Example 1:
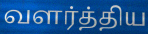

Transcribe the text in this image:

வளர்த்திய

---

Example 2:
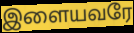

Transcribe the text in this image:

இளையவரே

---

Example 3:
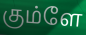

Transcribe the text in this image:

கும்ளே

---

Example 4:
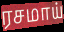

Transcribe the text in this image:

ரசமாய்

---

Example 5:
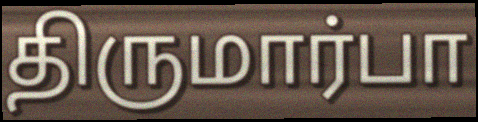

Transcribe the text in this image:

திருமார்பா